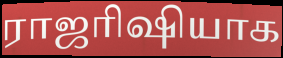
ராஜரிஷியாக